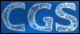
CGS